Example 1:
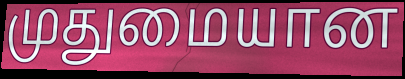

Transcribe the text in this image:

முதுமையான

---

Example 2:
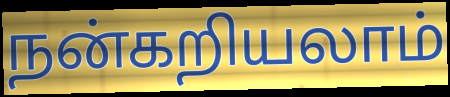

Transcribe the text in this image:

நன்கறியலாம்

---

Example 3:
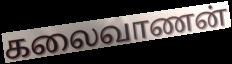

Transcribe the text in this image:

கலைவாணன்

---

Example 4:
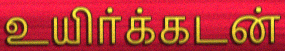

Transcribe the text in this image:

உயிர்க்கடன்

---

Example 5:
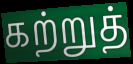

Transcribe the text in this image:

கற்றுத்